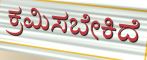
ಕ್ರಮಿಸಬೇಕಿದೆ